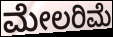
ಮೇಲರಿಮೆ